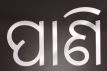
ପାଣି